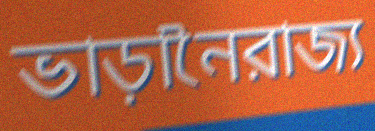
ভাড়ানৈরাজ্য